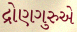
દ્રોણગુરુએ